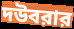
দউবরার